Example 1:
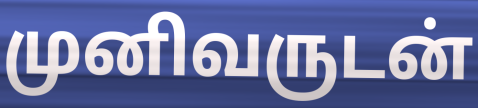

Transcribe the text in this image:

முனிவருடன்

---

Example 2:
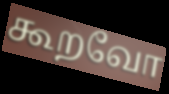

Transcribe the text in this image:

கூறவோ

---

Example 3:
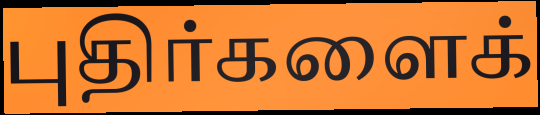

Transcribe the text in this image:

புதிர்களைக்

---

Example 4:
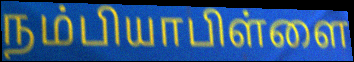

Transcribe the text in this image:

நம்பியாபிள்ளை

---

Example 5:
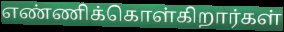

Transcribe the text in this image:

எண்ணிக்கொள்கிறார்கள்